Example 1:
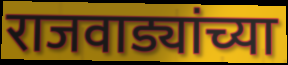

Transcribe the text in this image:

राजवाड्यांच्या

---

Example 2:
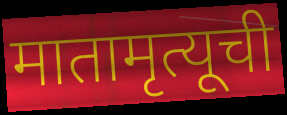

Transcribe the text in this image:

मातामृत्यूची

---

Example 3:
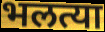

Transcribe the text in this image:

भलत्या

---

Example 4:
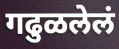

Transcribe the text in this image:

गढुळलेलं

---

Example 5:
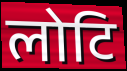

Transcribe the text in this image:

लोटि